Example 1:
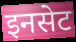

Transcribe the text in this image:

इनसेट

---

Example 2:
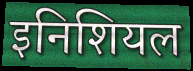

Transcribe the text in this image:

इनिशियल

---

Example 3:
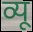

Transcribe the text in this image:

व्यू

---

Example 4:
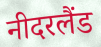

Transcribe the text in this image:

नीदरलैंड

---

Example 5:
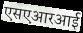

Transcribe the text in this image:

एसएआरआई